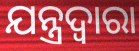
ଯନ୍ତ୍ରଦ୍ଵାରା